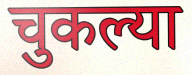
चुकल्या